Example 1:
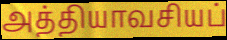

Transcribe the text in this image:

அத்தியாவசியப்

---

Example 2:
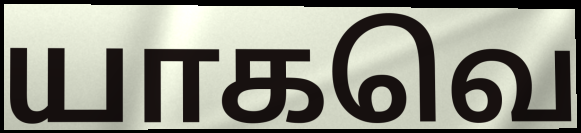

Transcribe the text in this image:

யாகவெ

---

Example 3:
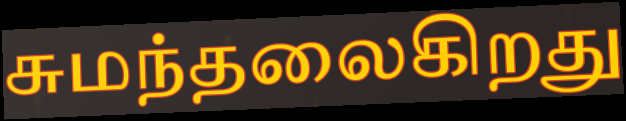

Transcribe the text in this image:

சுமந்தலைகிறது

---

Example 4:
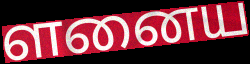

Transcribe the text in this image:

ளனைய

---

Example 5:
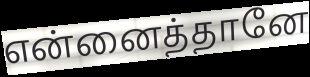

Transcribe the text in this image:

என்னைத்தானே